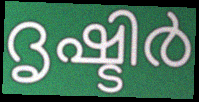
ദൃഷ്ടിർ